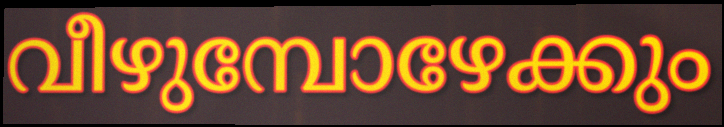
വീഴുമ്പോഴേക്കും